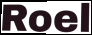
Roel